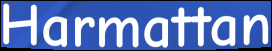
Harmattan